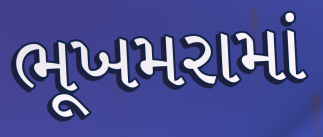
ભૂખમરામાં